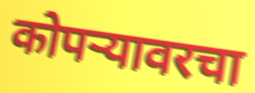
कोपऱ्यावरचा